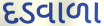
દડવાળા